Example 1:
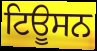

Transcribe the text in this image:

ਟਿਊਸਨ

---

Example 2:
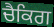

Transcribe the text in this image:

ਚੈਕਿਗ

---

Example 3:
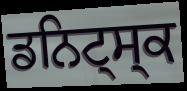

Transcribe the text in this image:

ਡਨਿਟ੍ਸ੍ਕ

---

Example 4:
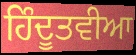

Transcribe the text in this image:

ਹਿੰਦੂਤਵੀਆ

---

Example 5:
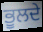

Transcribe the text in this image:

ਭੂਲਦੇ